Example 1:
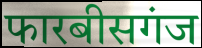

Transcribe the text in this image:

फारबीसगंज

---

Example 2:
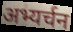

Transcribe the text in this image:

अभ्यर्चन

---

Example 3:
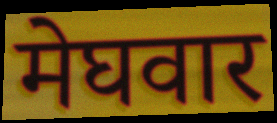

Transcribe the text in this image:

मेघवार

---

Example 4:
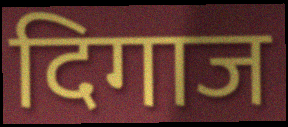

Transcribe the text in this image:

दिगाज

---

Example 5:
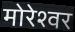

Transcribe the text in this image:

मोरेश्वर